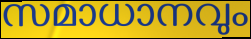
സമാധാനവും